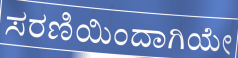
ಸರಣಿಯಿಂದಾಗಿಯೇ